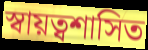
স্বায়ত্বশাসিত